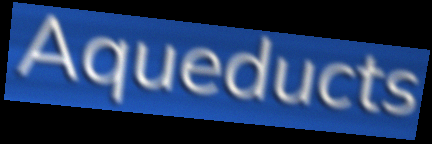
Aqueducts